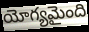
యోగ్యమైంది